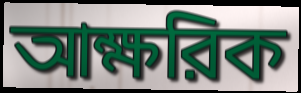
আক্ষরিক